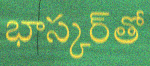
భాస్కర్‌తో